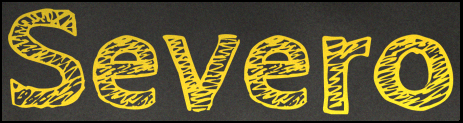
Severo